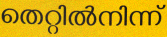
തെറ്റിൽനിന്ന്